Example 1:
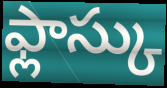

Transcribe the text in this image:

ఫ్లాస్కు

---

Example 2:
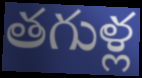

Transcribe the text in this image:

తగుళ్ల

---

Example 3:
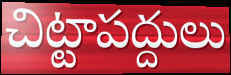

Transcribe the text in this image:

చిట్టాపద్దులు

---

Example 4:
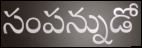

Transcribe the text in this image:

సంపన్నుడో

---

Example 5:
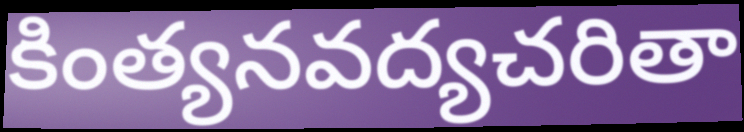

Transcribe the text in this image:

కింత్యనవద్యచరితా